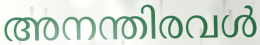
അനന്തിരവൾ